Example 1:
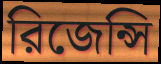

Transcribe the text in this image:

রিজেন্সি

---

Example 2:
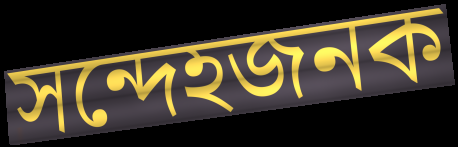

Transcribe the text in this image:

সন্দেহজনক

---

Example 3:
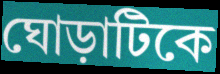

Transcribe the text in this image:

ঘোড়াটিকে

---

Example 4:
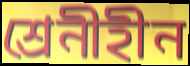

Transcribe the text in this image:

শ্রেনীহীন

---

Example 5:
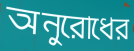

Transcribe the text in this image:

অনুরোধের